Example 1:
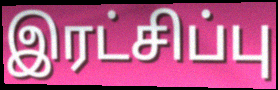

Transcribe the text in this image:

இரட்சிப்பு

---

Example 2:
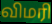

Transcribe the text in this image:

விமரி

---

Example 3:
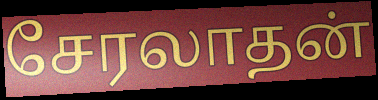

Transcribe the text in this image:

சேரலாதன்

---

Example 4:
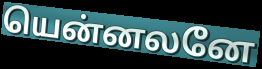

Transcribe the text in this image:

யென்னலனே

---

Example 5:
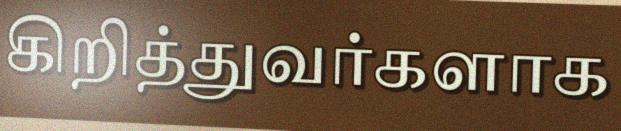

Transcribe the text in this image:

கிறித்துவர்களாக